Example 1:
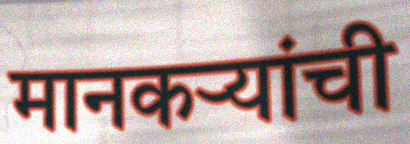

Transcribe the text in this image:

मानकऱ्यांची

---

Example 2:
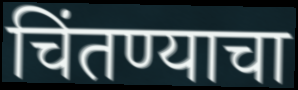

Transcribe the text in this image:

चिंतण्याचा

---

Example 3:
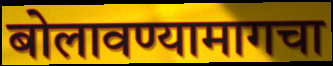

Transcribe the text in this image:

बोलावण्यामागचा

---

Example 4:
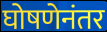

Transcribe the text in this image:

घोषणेनंतर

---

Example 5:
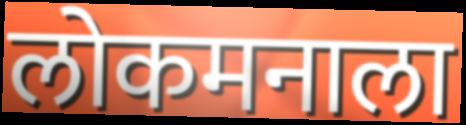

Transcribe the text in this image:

लोकमनाला